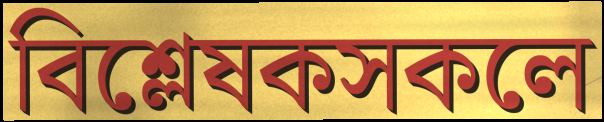
বিশ্লেষকসকলে